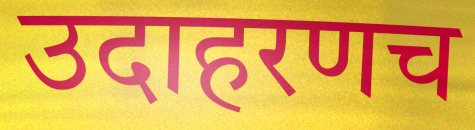
उदाहरणच